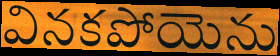
వినకపోయెను